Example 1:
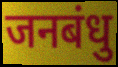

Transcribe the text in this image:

जनबंधु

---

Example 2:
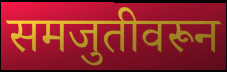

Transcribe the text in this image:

समजुतीवरून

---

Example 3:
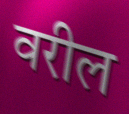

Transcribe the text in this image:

वरील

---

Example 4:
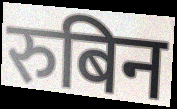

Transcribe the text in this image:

रुबिन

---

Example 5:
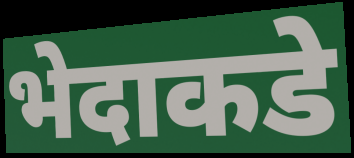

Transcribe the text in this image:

भेदाकडे